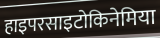
हाइपरसाइटोकिनेमिया